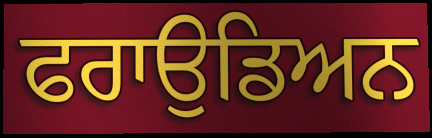
ਫਰਾਉਡਿਅਨ